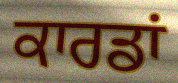
ਕਾਰਡਾਂ